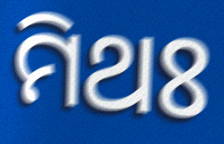
ମିଥଃ